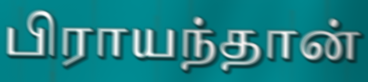
பிராயந்தான்